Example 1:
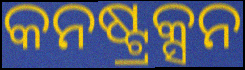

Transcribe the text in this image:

କନଷ୍ଟ୍ରକ୍ସନ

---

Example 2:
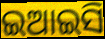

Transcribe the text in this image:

ଇଆଇସି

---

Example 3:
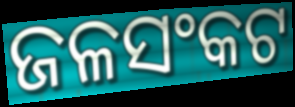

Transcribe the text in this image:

ଜଳସଂକଟ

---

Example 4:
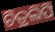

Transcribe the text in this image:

ଚିତ୍ରଲିପି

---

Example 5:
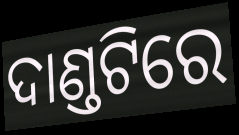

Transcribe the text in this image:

ଦାଣ୍ଡଟିରେ